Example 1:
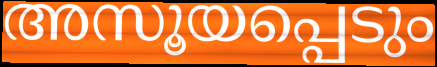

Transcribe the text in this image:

അസൂയപ്പെടും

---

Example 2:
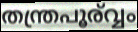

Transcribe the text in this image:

തന്ത്രപൂര്വ്വം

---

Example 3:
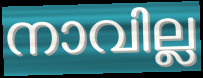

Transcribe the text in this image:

നാവില്ല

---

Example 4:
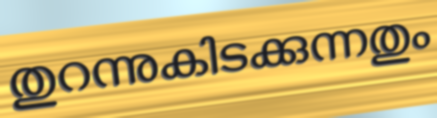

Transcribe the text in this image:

തുറന്നുകിടക്കുന്നതും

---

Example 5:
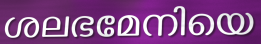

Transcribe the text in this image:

ശലഭമേനിയെ